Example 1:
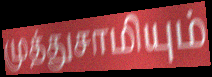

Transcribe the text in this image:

முத்துசாமியும்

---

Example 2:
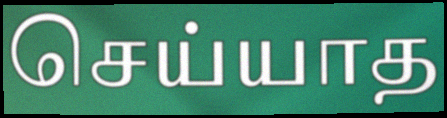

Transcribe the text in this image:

செய்யாத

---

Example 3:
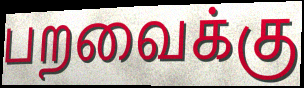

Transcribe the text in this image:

பறவைக்கு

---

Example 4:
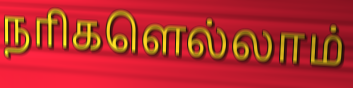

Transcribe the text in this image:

நரிகளெல்லாம்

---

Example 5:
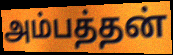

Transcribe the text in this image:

அம்பத்தன்